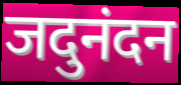
जदुनंदन